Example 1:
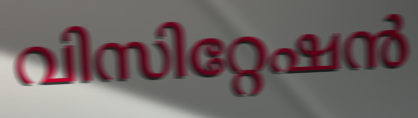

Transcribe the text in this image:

വിസിറ്റേഷൻ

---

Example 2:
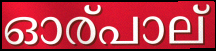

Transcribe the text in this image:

ഓര്പാല്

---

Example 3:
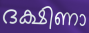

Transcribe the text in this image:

ദക്ഷിണാ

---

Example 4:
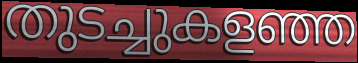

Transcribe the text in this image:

തുടച്ചുകളഞ്ഞ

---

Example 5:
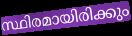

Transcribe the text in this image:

സ്ഥിരമായിരിക്കും